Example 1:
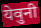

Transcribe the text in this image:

येवुनी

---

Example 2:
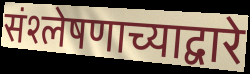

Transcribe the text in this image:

संश्लेषणाच्याद्वारे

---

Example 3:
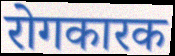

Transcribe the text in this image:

रोगकारक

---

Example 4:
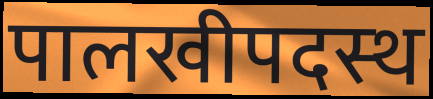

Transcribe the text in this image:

पालखीपदस्थ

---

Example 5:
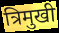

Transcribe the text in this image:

त्रिमुखी